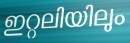
ഇറ്റലിയിലും